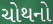
ચોથનો